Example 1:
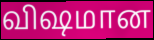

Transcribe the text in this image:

விஷமான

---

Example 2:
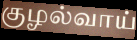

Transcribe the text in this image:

குழல்வாய்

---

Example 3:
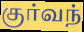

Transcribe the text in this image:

குர்வந்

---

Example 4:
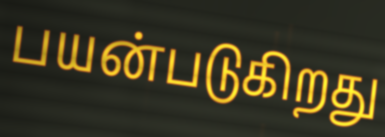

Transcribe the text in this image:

பயன்படுகிறது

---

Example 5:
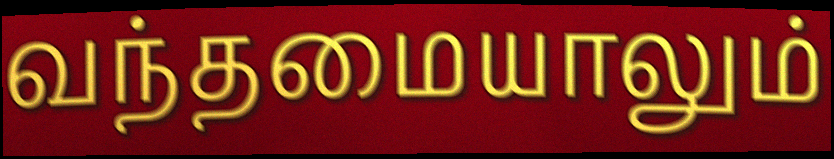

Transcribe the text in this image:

வந்தமையாலும்